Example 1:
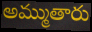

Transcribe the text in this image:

అమ్ముతారు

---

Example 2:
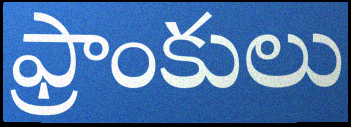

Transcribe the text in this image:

ఫ్రాంకులు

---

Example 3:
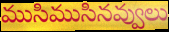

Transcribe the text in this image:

ముసిముసినవ్వులు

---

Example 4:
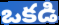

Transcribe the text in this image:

ఒకడి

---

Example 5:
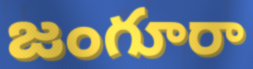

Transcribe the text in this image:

జంగూరా